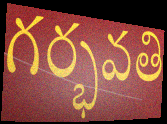
గర్భవతి